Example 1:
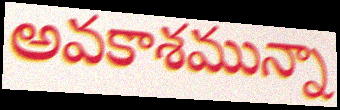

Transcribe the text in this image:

అవకాశమున్నా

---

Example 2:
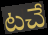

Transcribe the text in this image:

టచే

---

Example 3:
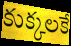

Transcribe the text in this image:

కుక్కలకే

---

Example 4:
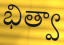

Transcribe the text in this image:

భిత్వా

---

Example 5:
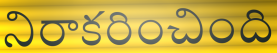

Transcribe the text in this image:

నిరాకరించింది